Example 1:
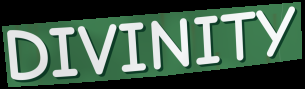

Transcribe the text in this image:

DIVINITY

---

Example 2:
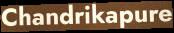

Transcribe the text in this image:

Chandrikapure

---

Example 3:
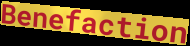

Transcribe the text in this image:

Benefaction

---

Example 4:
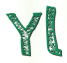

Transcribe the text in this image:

Yl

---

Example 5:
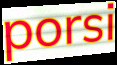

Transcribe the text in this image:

porsi